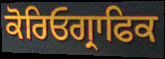
ਕੋਰਿਓਗ੍ਰਾਫਿਕ